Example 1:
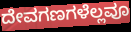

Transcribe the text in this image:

ದೇವಗಣಗಳೆಲ್ಲವೂ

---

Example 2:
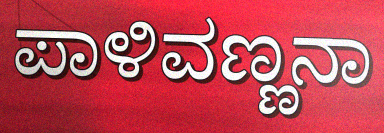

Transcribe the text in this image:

ಪಾಳಿವಣ್ಣನಾ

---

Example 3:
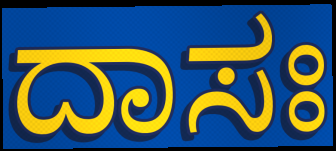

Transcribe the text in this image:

ದಾಸಃ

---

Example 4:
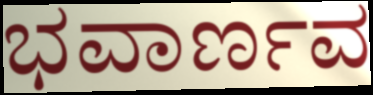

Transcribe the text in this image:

ಭವಾರ್ಣವ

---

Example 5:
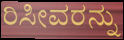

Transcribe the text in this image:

ರಿಸೀವರನ್ನು